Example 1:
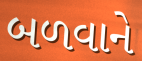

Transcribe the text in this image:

બળવાને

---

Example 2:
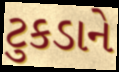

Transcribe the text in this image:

ટુકડાને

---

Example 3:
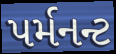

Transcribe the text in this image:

પર્મનન્ટ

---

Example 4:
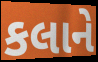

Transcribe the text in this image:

કલાને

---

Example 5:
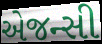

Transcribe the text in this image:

એજન્સી